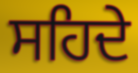
ਸਹਿਦੇ